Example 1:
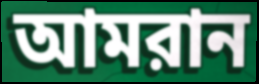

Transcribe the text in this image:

আমরান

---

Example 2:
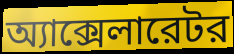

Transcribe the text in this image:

অ্যাক্সেলারেটর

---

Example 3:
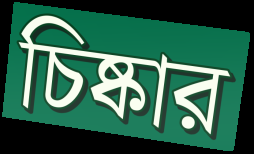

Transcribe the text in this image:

চিষ্কার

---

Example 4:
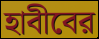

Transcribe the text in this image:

হাবীবের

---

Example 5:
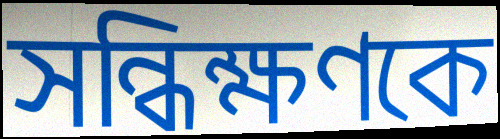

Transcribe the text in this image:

সন্ধিক্ষণকে